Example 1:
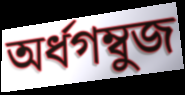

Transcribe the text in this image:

অর্ধগম্বুজ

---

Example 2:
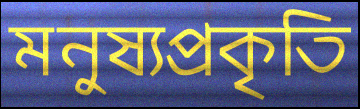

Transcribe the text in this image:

মনুষ্যপ্রকৃতি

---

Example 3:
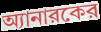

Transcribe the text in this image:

অ্যানারকের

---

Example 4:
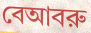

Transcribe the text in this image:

বেআবরু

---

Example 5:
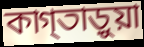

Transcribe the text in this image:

কাগ্‌তাড়ুয়া